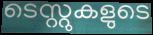
ടെസ്റ്റുകളുടെ